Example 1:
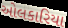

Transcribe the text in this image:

ઓલકારિયા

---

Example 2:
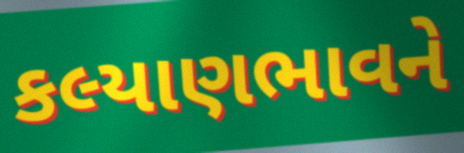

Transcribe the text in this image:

કલ્યાણભાવને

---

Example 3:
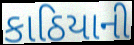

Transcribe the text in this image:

કાઠિયાની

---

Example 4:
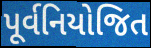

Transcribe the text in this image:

પૂર્વનિયોજિત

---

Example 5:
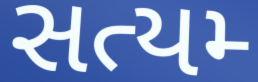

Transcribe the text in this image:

સત્યમ્‍